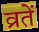
व्रतें